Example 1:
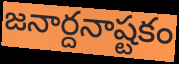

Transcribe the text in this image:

జనార్దనాష్టకం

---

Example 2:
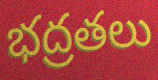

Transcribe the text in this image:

భద్రతలు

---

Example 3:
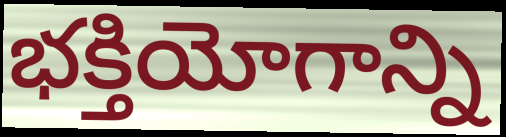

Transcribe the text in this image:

భక్తియోగాన్ని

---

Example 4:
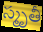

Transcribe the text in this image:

స్మృతీ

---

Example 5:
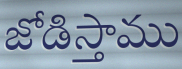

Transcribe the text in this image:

జోడిస్తాము